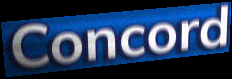
Concord